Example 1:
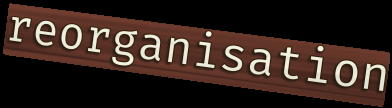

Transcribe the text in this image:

reorganisation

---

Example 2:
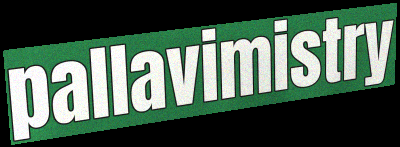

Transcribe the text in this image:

pallavimistry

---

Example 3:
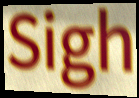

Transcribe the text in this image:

Sigh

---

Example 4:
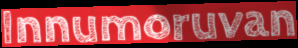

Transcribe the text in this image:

Innumoruvan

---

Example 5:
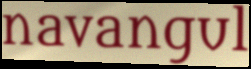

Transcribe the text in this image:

navangul